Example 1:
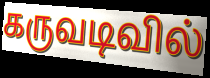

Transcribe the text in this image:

கருவடிவில்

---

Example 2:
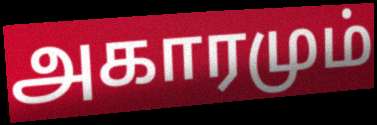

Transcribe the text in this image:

அகாரமும்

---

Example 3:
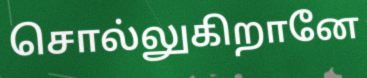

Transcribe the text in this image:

சொல்லுகிறானே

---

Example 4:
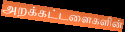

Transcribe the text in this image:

அறக்கட்டளைகளின்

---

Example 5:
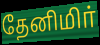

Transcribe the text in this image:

தேனிமிர்